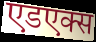
एडएक्स